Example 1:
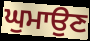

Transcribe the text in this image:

ਘੁਮਾਉਣ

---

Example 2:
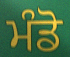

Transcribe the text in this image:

ਮੰਡੋ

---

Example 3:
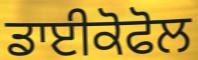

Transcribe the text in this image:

ਡਾਈਕੋਫੋਲ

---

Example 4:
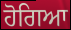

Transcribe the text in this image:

ਹੋਗਿਆ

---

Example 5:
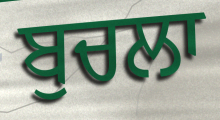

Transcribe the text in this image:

ਬੁਚਲਾ